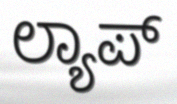
ಲ್ಯಾಪ್